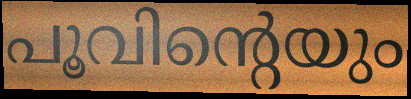
പൂവിന്റെയും